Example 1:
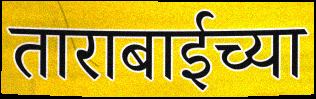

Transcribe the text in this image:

ताराबाईच्या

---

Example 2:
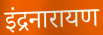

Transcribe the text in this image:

इंद्रनारायण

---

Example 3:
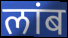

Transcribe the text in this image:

लांब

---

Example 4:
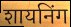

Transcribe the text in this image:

शायनिंग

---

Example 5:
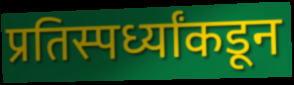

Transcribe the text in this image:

प्रतिस्पर्ध्यांकडून